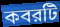
কবরটি